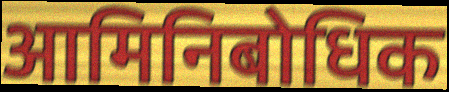
आमिनिबोधिक